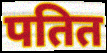
पतित